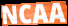
NCAA